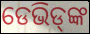
ଡେଭିଡ୍‌ଙ୍କ